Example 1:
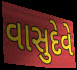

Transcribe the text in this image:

વાસુદેવે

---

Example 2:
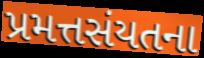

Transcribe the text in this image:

પ્રમત્તસંયતના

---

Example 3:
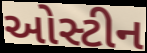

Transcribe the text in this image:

ઓસ્ટીન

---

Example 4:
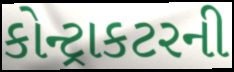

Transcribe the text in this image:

કોન્ટ્રાકટરની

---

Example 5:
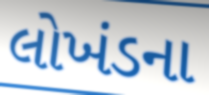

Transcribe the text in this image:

લોખંડના